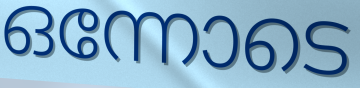
ഒന്നോടെ